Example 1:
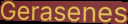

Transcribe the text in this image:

Gerasenes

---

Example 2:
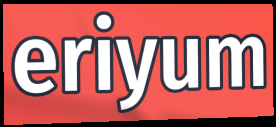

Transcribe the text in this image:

eriyum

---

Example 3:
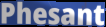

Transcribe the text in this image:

Phesant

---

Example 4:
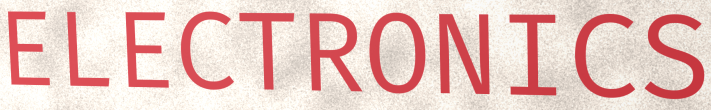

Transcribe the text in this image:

ELECTRONICS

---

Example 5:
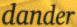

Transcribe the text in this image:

dander